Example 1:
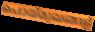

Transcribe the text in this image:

പൊയ്മുഖങ്ങള്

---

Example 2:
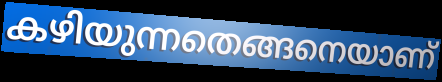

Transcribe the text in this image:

കഴിയുന്നതെങ്ങനെയാണ്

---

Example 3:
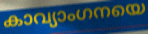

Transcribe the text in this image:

കാവ്യാംഗനയെ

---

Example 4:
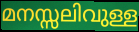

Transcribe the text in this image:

മനസ്സലിവുള്ള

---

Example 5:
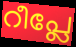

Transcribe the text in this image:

റീപ്ലേ